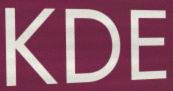
KDE